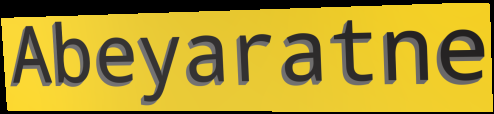
Abeyaratne